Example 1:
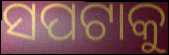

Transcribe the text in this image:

ସପଟାକୁ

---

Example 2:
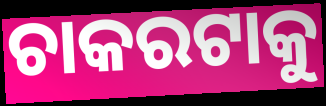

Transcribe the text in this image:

ଚାକରଟାକୁ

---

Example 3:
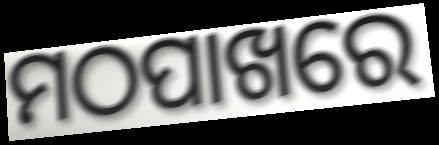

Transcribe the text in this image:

ମଠପାଖରେ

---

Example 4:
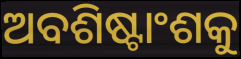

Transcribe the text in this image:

ଅବଶିଷ୍ଟାଂଶକୁ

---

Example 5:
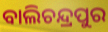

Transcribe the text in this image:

ବାଲିଚନ୍ଦ୍ରପୁର